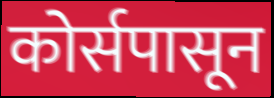
कोर्सपासून